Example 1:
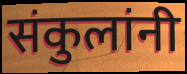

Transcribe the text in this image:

संकुलांनी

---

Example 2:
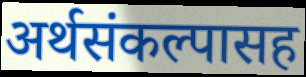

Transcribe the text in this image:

अर्थसंकल्पासह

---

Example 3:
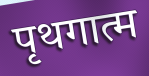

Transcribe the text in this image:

पृथगात्म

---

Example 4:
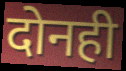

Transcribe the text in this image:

दोनही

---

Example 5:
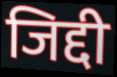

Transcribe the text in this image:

जिद्दी